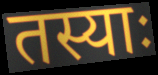
तस्याः